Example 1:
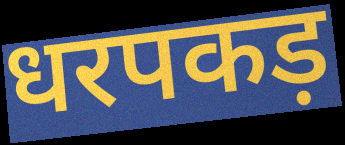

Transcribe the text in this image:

धरपकड़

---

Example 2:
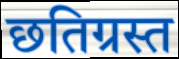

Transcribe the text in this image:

छतिग्रस्त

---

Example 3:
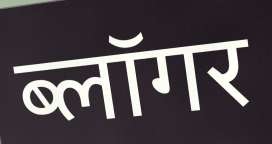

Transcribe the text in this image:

ब्लॉगर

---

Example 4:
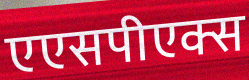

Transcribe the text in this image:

एएसपीएक्स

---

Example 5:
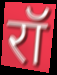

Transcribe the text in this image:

रॉ